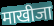
माखीजा